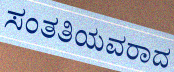
ಸಂತತಿಯವರಾದ